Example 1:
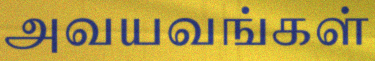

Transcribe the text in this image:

அவயவங்கள்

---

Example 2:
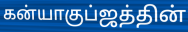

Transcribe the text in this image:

கன்யாகுப்ஜத்தின்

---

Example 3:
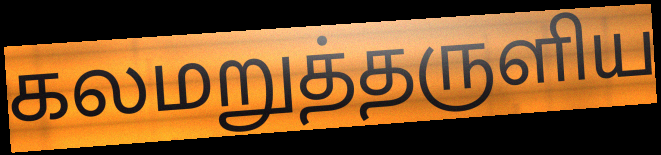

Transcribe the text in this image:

கலமறுத்தருளிய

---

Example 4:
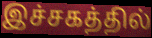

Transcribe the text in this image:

இச்சகத்தில்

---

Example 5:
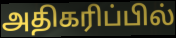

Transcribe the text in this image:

அதிகரிப்பில்